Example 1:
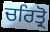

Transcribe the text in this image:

ਚਰਿਤ੍ਰੋ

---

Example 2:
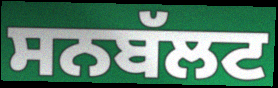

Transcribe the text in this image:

ਸਨਬੱਲਟ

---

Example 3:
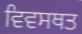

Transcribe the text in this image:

ਵਿਵਸਥਤ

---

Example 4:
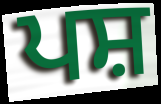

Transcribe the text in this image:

ਪਸ਼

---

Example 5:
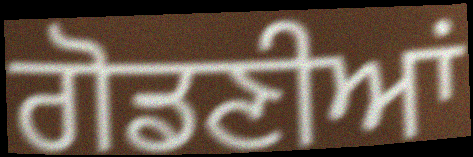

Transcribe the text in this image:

ਗੋਡਣੀਆਂ